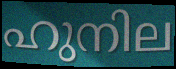
ഹുനില